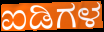
ಐಡಿಗಳ